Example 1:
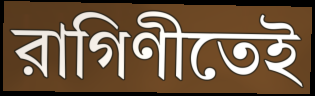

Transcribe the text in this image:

রাগিণীতেই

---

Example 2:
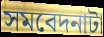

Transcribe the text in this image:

সমবেদনাটা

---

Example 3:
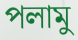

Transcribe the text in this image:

পলামু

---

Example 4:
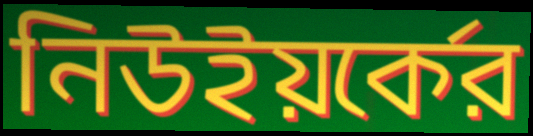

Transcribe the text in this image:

নিউইয়র্কের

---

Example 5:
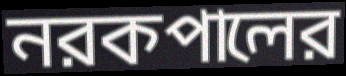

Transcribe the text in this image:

নরকপালের